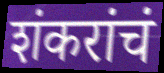
शंकरांचं